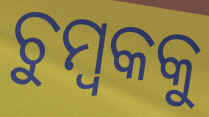
ଚୁମ୍ୱକକୁ